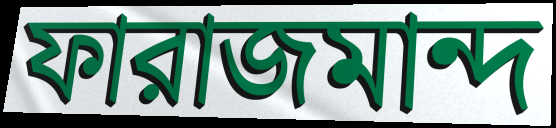
ফারাজমান্দ